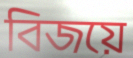
বিজয়ে